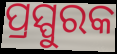
ପ୍ରସ୍ପୁରକ